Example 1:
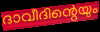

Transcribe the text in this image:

ദാവീദിന്റെയും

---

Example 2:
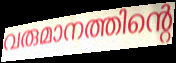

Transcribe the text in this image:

വരുമാനത്തിന്റെ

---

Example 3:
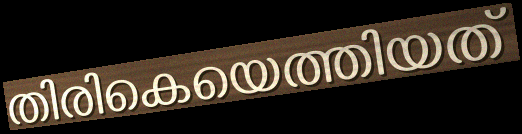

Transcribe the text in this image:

തിരികെയെത്തിയത്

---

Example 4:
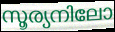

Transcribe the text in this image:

സൂര്യനിലോ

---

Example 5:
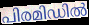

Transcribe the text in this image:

പിരമിഡിൽ